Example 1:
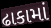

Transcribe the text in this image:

ઢાકામાં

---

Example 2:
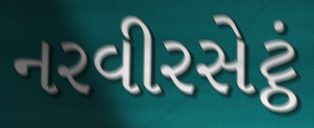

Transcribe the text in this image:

નરવીરસેટ્ઠં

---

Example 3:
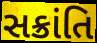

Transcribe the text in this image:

સક્રાંતિ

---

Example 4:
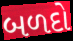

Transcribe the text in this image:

બળદો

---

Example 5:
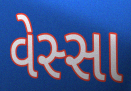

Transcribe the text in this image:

વેસ્સા